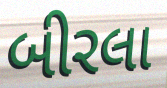
બીરલા